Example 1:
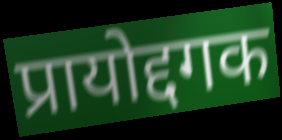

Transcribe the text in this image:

प्रायोद्दगक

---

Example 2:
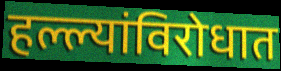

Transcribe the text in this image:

हल्ल्यांविरोधात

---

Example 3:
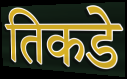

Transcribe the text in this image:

तिकडे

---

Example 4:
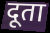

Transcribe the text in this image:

दूता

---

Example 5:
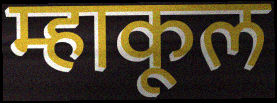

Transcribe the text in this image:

म्हाकूल